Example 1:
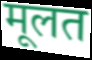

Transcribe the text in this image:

मूलत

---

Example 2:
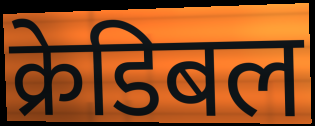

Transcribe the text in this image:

क्रेडिबल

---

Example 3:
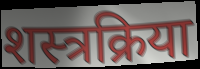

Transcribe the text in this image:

शस्त्रक्रिया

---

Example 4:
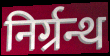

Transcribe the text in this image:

निर्ग्रन्थ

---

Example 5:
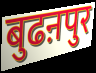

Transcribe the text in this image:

बुढऩपुर